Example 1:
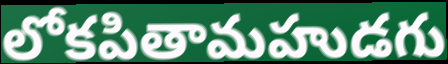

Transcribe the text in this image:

లోకపితామహుడగు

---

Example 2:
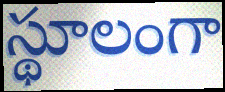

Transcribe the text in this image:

స్థూలంగా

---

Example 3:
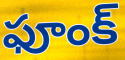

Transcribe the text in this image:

ఫూంక్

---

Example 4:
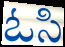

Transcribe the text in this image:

ఓసి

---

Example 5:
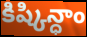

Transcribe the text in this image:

కిష్కిన్ధాం